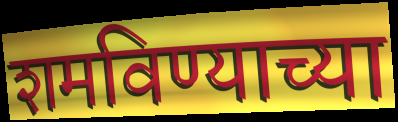
शमविण्याच्या